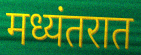
मध्यंतरात